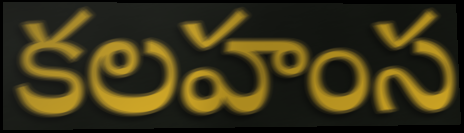
కలహంస